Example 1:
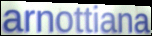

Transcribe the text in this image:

arnottiana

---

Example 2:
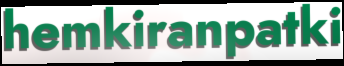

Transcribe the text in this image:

hemkiranpatki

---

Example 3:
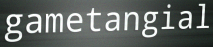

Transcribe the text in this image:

gametangial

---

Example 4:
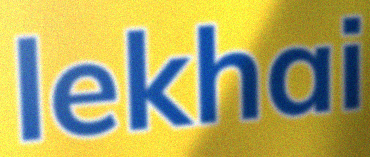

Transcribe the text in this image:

lekhai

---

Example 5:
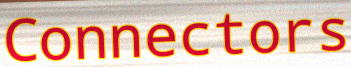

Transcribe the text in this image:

Connectors